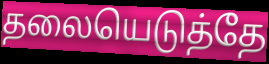
தலையெடுத்தே